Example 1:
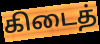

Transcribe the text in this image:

கிடைத்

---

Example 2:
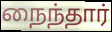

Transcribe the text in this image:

நைந்தார்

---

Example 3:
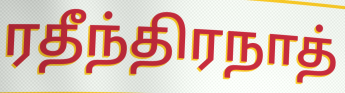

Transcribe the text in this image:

ரதீந்திரநாத்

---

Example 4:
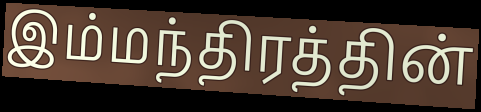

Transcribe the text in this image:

இம்மந்திரத்தின்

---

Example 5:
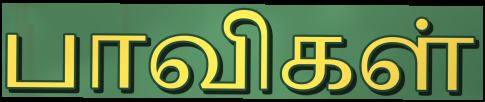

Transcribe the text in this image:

பாவிகள்